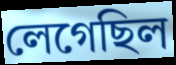
লেগেছিল